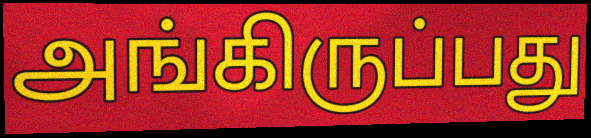
அங்கிருப்பது